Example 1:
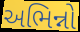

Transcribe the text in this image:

અભિન્નો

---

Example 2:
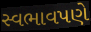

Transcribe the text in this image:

સ્વભાવપણે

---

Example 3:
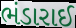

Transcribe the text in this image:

ભંડારાઈ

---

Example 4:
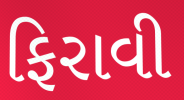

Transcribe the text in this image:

ફિરાવી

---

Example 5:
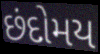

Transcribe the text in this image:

છંદોમય